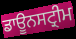
ਡਾਊਨਸਟ੍ਰੀਮ